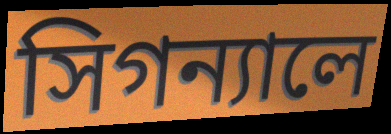
সিগন্যালে